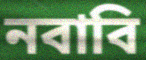
নবাবি